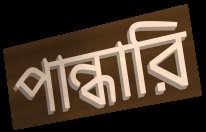
পান্ধারি